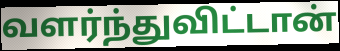
வளர்ந்துவிட்டான்